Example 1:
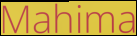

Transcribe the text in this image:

Mahima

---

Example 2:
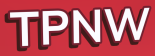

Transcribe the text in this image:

TPNW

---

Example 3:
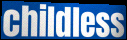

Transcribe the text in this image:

childless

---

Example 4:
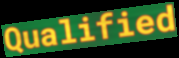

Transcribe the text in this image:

Qualified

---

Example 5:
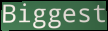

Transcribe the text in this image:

Biggest